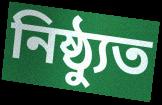
নিষ্ঠ্যুত